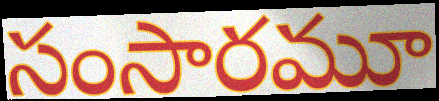
సంసారమూ